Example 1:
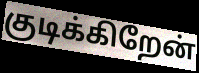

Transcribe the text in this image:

குடிக்கிறேன்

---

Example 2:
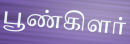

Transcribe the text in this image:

பூண்கிளர்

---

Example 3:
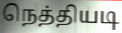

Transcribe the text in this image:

நெத்தியடி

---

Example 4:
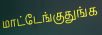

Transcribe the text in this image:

மாட்டேங்குதுங்க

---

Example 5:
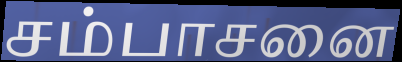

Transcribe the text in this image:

சம்பாசனை